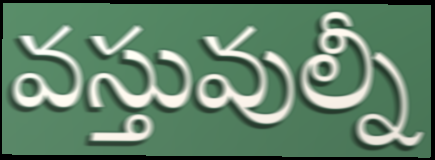
వస్తువుల్నీ